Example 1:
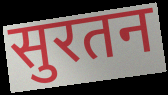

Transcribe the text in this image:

सुरतन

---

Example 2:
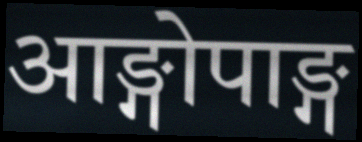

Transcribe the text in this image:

आङ्गोपाङ्ग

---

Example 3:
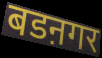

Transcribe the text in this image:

बडऩगर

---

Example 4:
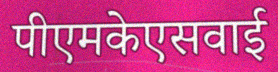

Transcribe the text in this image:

पीएमकेएसवाई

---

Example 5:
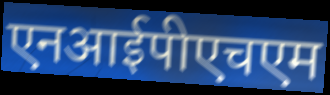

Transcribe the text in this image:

एनआईपीएचएम